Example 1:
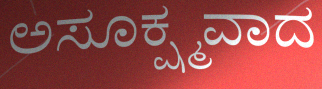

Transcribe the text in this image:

ಅಸೂಕ್ಷ್ಮವಾದ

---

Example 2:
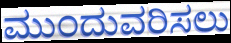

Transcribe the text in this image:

ಮುಂದುವರಿಸಲು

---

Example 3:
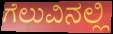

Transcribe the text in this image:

ಗೆಲುವಿನಲ್ಲಿ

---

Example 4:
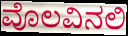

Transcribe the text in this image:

ವೊಲವಿನಲಿ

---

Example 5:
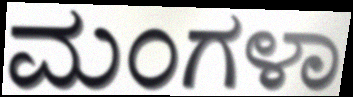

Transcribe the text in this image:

ಮಂಗಳಾ